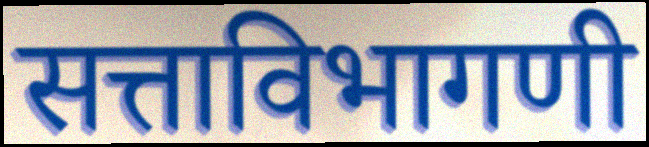
सत्ताविभागणी